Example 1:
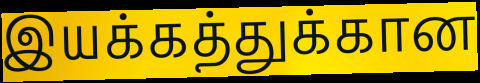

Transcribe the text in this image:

இயக்கத்துக்கான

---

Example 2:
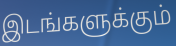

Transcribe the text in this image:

இடங்களுக்கும்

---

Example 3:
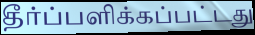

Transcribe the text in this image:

தீர்ப்பளிக்கப்பட்டது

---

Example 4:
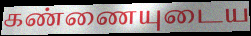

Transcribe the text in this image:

கண்ணையுடைய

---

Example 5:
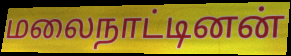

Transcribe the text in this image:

மலைநாட்டினன்